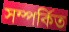
সম্পৰ্কিত